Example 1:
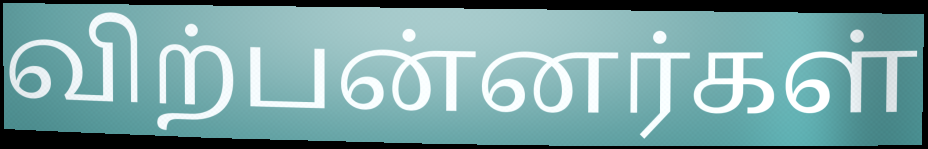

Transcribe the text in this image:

விற்பன்னர்கள்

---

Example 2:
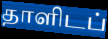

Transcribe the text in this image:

தாளிடப்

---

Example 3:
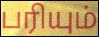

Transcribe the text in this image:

பரியும்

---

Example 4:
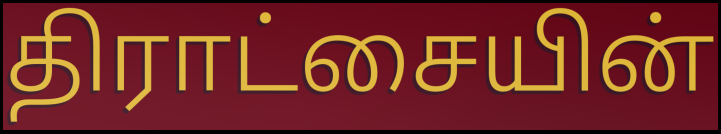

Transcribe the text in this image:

திராட்சையின்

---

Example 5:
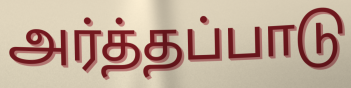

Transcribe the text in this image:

அர்த்தப்பாடு